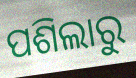
ପଶିଲାରୁ